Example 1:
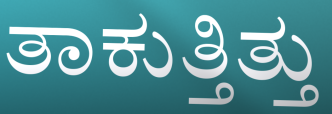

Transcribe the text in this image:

ತಾಕುತ್ತಿತ್ತು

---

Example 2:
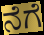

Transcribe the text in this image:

ನೆಗೆ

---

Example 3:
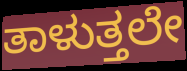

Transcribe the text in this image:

ತಾಳುತ್ತಲೇ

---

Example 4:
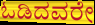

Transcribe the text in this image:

ಓಡಿದವರೇ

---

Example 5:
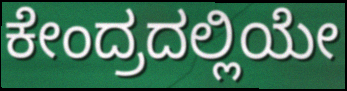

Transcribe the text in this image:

ಕೇಂದ್ರದಲ್ಲಿಯೇ